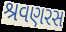
શ્રવણરસ